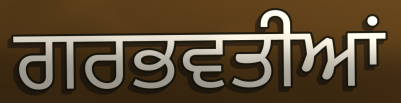
ਗਰਭਵਤੀਆਂ